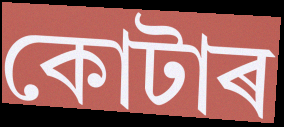
কোটাৰ